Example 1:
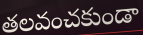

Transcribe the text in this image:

తలవంచకుండా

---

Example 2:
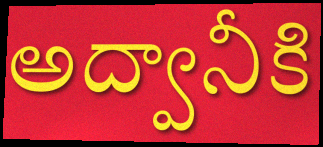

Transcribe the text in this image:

అద్వానీకి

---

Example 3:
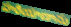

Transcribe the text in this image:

హరియాణాను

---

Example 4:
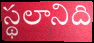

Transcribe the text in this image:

స్థలానిది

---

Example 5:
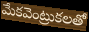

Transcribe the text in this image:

మేకవెంట్రుకలతో